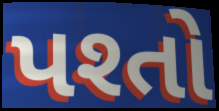
પશ્તો